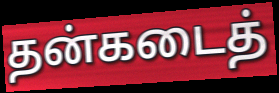
தன்கடைத்